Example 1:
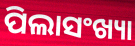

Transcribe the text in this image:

ପିଲାସଂଖ୍ୟା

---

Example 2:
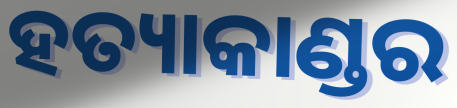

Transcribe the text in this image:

ହତ୍ୟାକାଣ୍ଡର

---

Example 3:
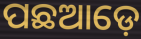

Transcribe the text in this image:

ପଛଆଡ଼େ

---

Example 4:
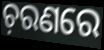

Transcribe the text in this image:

ଚ଼ରଣରେ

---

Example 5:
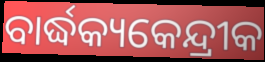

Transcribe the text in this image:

ବାର୍ଦ୍ଧକ୍ୟକେନ୍ଦ୍ରୀକ